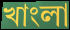
খাংলা